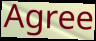
Agree